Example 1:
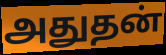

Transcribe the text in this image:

அதுதன்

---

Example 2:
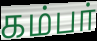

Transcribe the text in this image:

கம்பர்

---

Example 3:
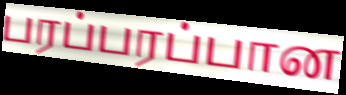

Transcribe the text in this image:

பரப்பரப்பான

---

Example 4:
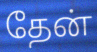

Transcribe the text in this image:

தேன்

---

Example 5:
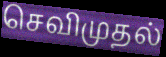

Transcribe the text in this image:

செவிமுதல்